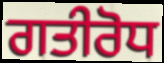
ਗਤੀਰੋਧ